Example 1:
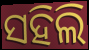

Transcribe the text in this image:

ସହିଲି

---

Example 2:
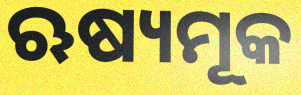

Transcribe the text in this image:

ଋଷ୍ୟମୂକ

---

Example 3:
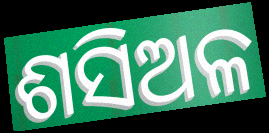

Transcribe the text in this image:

ଶସିଅଳ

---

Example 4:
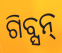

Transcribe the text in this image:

ଗିବ୍ସନ୍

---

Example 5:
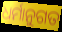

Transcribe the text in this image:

ଧର୍ମାନୁଗତ